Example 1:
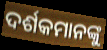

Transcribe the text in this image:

ଦର୍ଶକମାନଙ୍କୁ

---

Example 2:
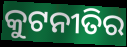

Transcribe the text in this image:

କୁଟନୀତିର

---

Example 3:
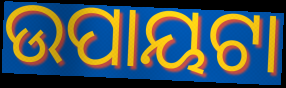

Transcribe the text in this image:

ଉପାୟଟା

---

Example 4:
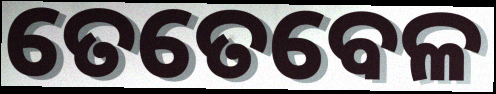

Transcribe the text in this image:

ତେତେବେଳ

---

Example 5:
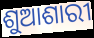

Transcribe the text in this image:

ଶୁଆଶାରୀ